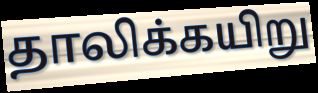
தாலிக்கயிறு